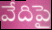
వేదిపై